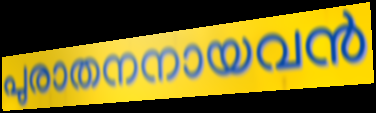
പുരാതനനായവൻ